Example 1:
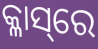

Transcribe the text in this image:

କ୍ଳାସ୍‌ରେ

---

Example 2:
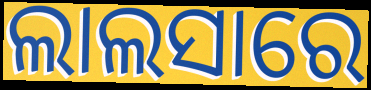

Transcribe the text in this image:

ଲାଲସାରେ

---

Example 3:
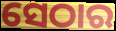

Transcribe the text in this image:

ସେଠାର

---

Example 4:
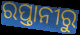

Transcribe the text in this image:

ରପ୍ତାନୀରୁ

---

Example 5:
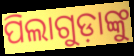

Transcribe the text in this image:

ପିଲାଗୁଡ଼ାଙ୍କୁ